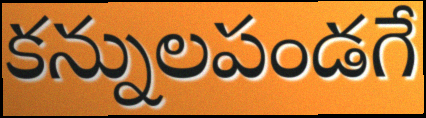
కన్నులపండగే